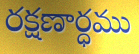
రక్షణార్ధము